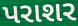
પરાશર